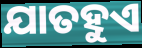
ଯାତହୁଏ